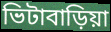
ভিটাবাড়িয়া